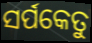
ସର୍ପକେତୁ